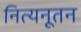
नित्यनूतन